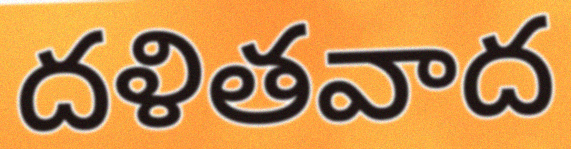
దళితవాద